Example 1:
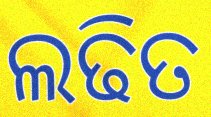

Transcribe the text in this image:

ଲଢିତ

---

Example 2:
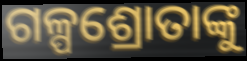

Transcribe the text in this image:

ଗଳ୍ପଶ୍ରୋତାଙ୍କୁ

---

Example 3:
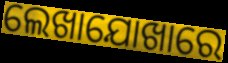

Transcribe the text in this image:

ଲେଖାଯୋଖାରେ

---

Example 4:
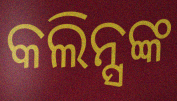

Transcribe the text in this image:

କଲିନ୍ସଙ୍କ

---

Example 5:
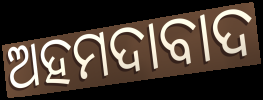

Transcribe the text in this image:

ଅହମଦାବାଦ